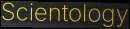
Scientology